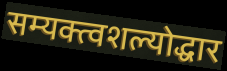
सम्यक्त्वशल्योद्धार